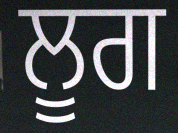
ਲੂਗ